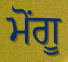
ਮੋਂਗੂ